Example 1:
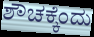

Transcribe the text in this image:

ಶೌಚಕ್ಕೆಂದು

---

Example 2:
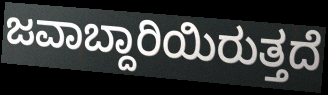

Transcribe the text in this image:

ಜವಾಬ್ದಾರಿಯಿರುತ್ತದೆ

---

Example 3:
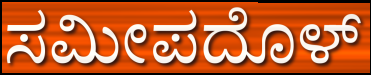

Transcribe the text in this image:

ಸಮೀಪದೊಳ್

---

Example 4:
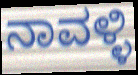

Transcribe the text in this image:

ನಾವಳ್ಳಿ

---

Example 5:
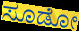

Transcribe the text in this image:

ಸೂಡೋ